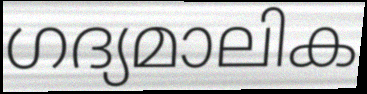
ഗദ്യമാലിക